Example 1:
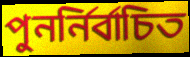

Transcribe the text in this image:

পুনর্নির্বাচিত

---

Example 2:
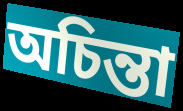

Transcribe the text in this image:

অচিন্তা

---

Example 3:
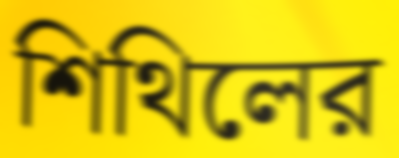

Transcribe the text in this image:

শিথিলের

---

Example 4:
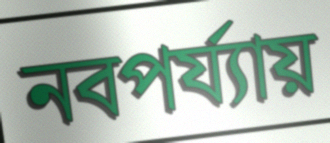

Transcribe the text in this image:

নবপর্য্যায়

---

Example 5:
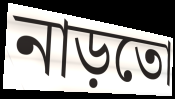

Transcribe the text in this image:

নাড়তো